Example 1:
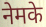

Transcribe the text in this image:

नेमके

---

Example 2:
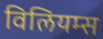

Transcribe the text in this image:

विलियम्स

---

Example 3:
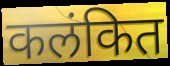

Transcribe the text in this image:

कलंकित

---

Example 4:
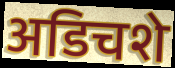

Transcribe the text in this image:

अडिचशे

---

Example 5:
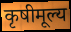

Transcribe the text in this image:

कृषीमूल्य